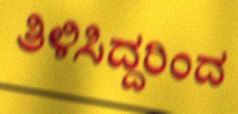
ತಿಳಿಸಿದ್ದರಿಂದ